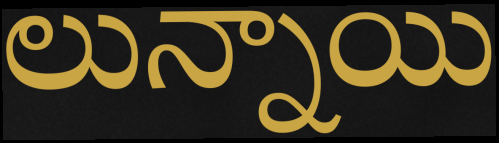
లున్నాయి